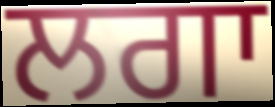
ਲਗਾ